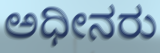
ಅಧೀನರು